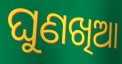
ଘୁଣଖିଆ